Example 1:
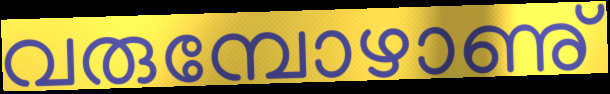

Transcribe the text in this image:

വരുമ്പോഴാണു്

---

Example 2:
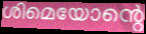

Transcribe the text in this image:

ശിമെയോന്റെ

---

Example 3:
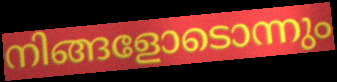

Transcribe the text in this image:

നിങ്ങളോടൊന്നും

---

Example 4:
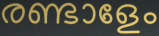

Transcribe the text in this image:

രണ്ടാളേം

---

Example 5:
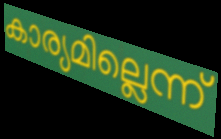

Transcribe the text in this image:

കാര്യമില്ലെന്ന്